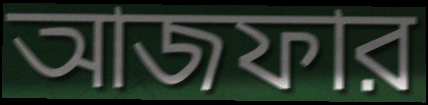
আজফার